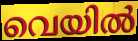
വെയിൽ